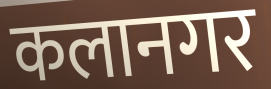
कलानगर